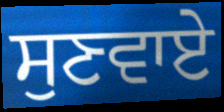
ਸੁਣਵਾਏ